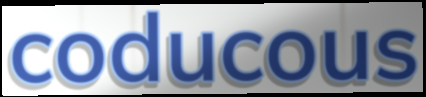
coducous